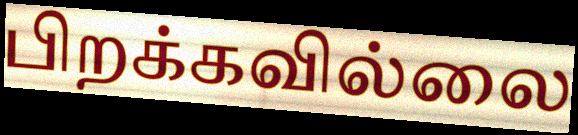
பிறக்கவில்லை